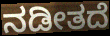
ನಡೀತದೆ